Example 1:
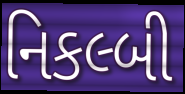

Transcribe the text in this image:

નિકલ્બી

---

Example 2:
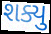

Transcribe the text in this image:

શક્યુ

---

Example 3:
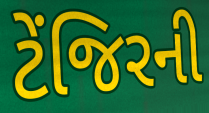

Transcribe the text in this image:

ટેંજિરની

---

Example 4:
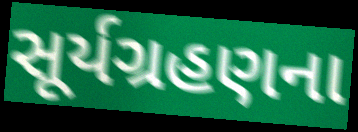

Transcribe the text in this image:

સૂર્યગ્રહણના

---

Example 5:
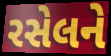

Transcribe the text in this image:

રસેલને